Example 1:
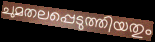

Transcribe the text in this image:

ചുമതലപ്പെടുത്തിയതും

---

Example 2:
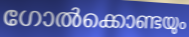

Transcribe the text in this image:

ഗോൽക്കൊണ്ടയും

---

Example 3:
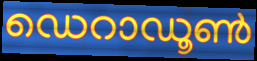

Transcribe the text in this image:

ഡെറാഡൂൺ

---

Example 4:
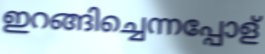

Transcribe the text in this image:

ഇറങ്ങിച്ചെന്നപ്പോള്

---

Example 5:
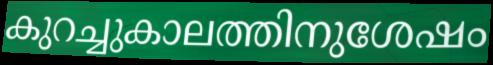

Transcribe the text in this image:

കുറച്ചുകാലത്തിനുശേഷം